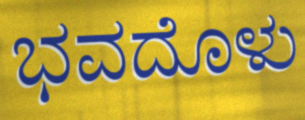
ಭವದೊಳು